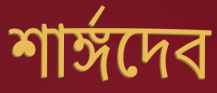
শার্ঙ্গদেব